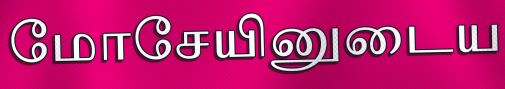
மோசேயினுடைய